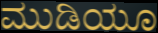
ಮುಡಿಯೂ